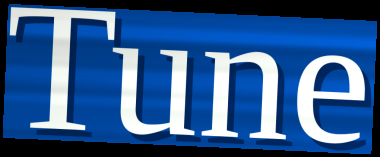
Tune